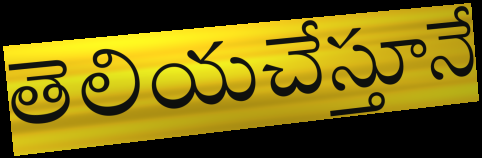
తెలియచేస్తూనే